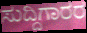
ಸುದ್ದಿಗಾರರ